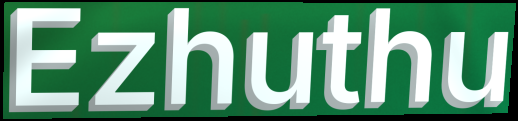
Ezhuthu